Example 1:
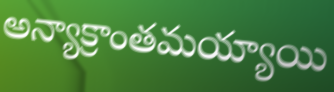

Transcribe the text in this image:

అన్యాక్రాంతమయ్యాయి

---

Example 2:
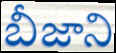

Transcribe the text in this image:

బీజాని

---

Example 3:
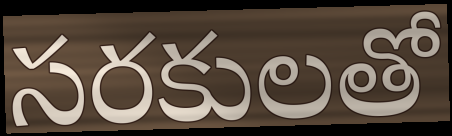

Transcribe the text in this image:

సరకులతో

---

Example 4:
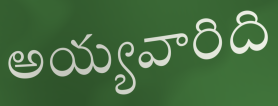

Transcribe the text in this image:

అయ్యవారిది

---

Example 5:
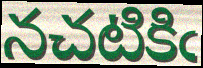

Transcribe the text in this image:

నచటికిఁ